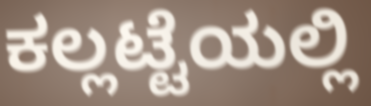
ಕಲ್ಲಟ್ಟೆಯಲ್ಲಿ